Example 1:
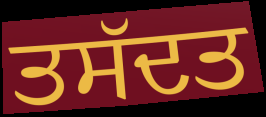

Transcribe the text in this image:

ਤਸੱਦਤ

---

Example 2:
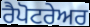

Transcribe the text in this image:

ਰੈਪੋਟਰੇਅਰ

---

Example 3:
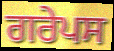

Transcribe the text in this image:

ਗਰੇਪਸ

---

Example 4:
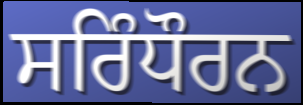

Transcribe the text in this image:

ਸਰਿੰਧੌਰਨ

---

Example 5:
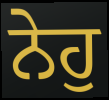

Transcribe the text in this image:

ਨੇਹੁ